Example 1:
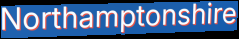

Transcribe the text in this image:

Northamptonshire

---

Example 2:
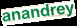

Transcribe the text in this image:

anandrey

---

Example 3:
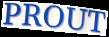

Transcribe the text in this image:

PROUT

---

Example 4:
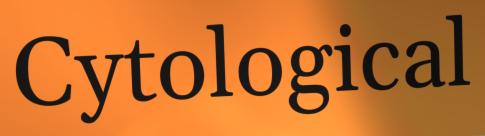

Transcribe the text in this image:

Cytological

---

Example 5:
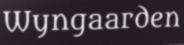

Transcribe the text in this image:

Wyngaarden